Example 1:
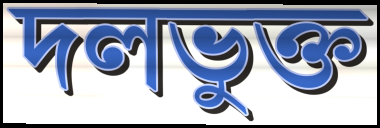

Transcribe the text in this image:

দলভুক্ত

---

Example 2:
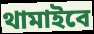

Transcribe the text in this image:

থামাইবে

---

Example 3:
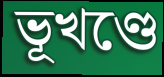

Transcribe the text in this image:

ভূখণ্ডে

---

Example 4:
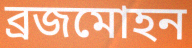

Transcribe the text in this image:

ব্রজমোহন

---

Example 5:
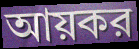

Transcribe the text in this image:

আয়কর